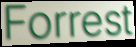
Forrest